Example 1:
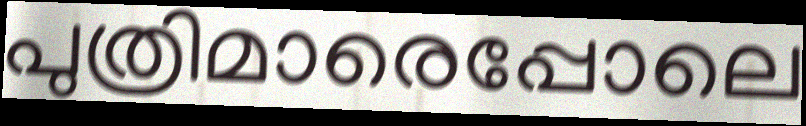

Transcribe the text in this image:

പുത്രിമാരെപ്പോലെ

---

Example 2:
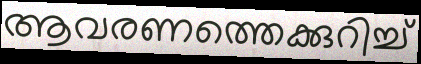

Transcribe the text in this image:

ആവരണത്തെക്കുറിച്ച്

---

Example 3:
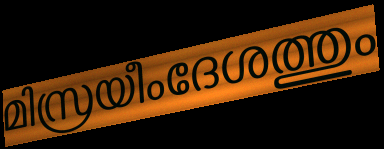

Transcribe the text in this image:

മിസ്രയീംദേശത്തും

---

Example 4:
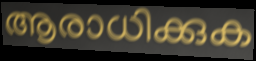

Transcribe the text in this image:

ആരാധിക്കുക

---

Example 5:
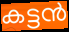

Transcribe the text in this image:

കട്ടൻ